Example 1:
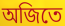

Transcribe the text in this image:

অজিতে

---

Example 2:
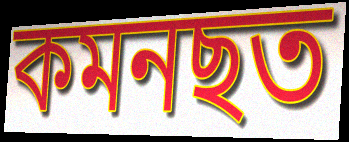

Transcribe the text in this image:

কমনছত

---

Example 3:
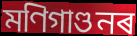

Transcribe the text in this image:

মণিগাণ্ডনৰ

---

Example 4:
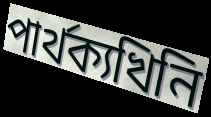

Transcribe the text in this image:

পাৰ্থক্যখিনি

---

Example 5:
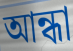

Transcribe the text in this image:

আন্ধা